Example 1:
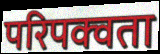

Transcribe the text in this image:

परिपक्‍वता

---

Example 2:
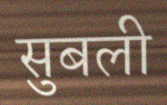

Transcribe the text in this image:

सुबली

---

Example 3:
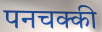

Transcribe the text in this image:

पनचक्की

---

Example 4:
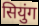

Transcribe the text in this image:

सियुंग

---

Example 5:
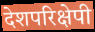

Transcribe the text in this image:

देशपरिक्षेपी